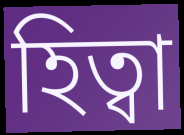
হিত্বা